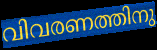
വിവരണത്തിനു